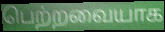
பெற்றவையாக